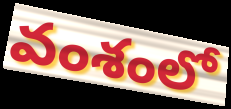
వంశంలో